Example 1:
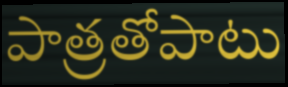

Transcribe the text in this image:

పాత్రతోపాటు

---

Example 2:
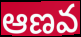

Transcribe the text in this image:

ఆణవ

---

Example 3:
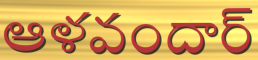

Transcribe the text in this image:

ఆళవందార్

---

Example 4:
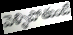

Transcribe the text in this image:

వెళ్ళిపోతుంటే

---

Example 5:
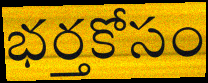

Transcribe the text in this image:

భర్తకోసం